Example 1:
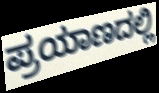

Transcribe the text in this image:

ಪ್ರಯಾಣದಲ್ಲಿ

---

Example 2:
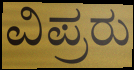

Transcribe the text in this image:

ವಿಪ್ರರು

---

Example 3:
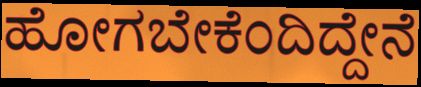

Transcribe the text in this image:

ಹೋಗಬೇಕೆಂದಿದ್ದೇನೆ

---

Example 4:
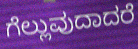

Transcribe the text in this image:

ಗೆಲ್ಲುವುದಾದರೆ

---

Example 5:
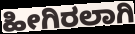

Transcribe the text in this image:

ಹೀಗಿರಲಾಗಿ